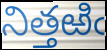
నిత్తఱిఁ